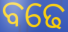
ବଢେ